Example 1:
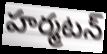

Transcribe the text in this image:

హర్మటన్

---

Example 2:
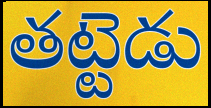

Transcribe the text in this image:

తట్టెడు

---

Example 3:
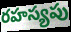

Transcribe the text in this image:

రహస్యపు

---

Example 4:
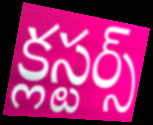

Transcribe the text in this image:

క్లస్టర్స్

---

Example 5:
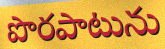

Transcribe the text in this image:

పొరపాటును